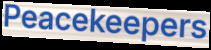
Peacekeepers